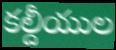
కల్దీయుల